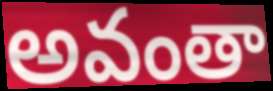
అవంతా